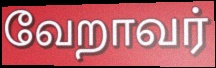
வேறாவர்